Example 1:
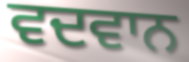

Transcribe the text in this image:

ਵਦਵਾਨ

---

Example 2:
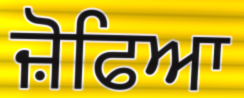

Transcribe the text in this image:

ਜ਼ੋਫਿਆ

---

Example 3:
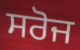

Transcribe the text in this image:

ਸਰੋਜ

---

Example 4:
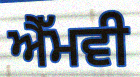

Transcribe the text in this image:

ਐੱਮਵੀ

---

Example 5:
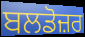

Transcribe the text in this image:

ਬਲਡੋਜ਼ਰ